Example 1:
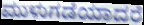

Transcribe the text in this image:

ಮುಳುಗಡೆಯಾದರೆ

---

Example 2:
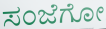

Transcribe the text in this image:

ಸಂಜೆಗೋ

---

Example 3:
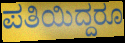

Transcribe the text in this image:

ಪತಿಯಿದ್ದರೂ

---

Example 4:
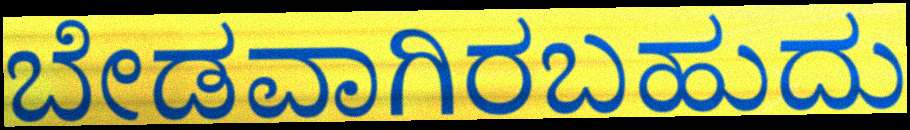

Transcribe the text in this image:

ಬೇಡವಾಗಿರಬಹುದು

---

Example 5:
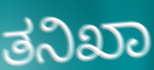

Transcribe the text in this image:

ತನಿಖಾ